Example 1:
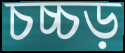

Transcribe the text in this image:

চচ্চড়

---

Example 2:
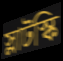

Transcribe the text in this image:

স্লাটস্কি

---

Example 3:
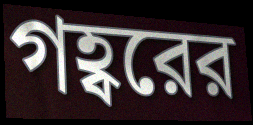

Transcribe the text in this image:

গহ্বরের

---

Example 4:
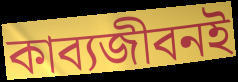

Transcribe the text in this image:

কাব্যজীবনই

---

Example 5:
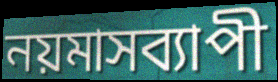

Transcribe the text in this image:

নয়মাসব্যাপী